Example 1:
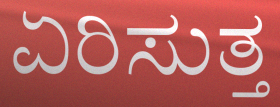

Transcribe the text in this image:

ಏರಿಸುತ್ತ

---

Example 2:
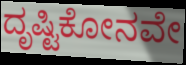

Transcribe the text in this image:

ದೃಷ್ಟಿಕೋನವೇ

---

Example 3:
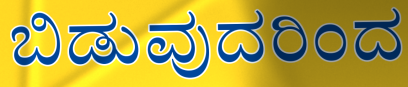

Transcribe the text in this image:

ಬಿಡುವುದರಿಂದ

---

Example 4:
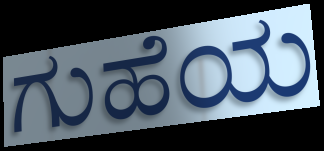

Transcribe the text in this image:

ಗುಹೆಯ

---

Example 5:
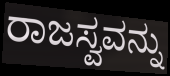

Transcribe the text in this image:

ರಾಜಸ್ವವನ್ನು